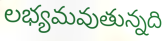
లభ్యమవుతున్నది